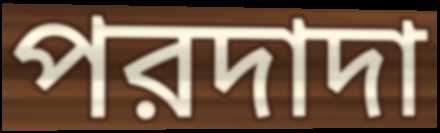
পরদাদা